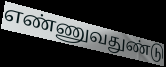
எண்ணுவதுண்டு